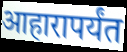
आहारापर्यंत